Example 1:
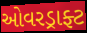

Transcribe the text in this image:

ઓવરડ્રાફ્ટ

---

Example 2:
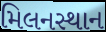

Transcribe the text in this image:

મિલનસ્થાન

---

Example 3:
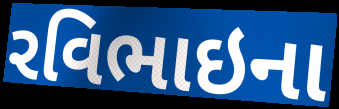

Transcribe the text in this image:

રવિભાઇના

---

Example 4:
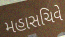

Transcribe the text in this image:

મહાસચિવે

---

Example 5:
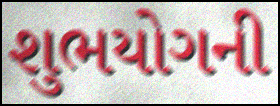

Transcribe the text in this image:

શુભયોગની